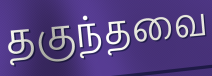
தகுந்தவை